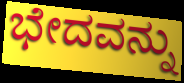
ಭೇದವನ್ನು